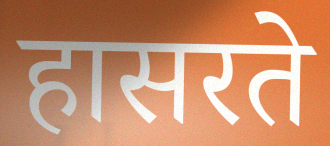
हासरते